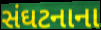
સંઘટનાના